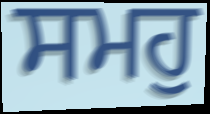
ਸਮਹੁ